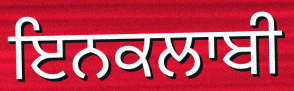
ਇਨਕਲਾਬੀ